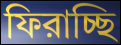
ফিরাচ্ছি